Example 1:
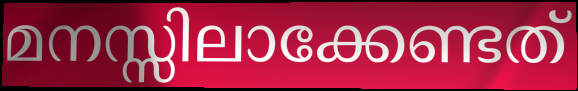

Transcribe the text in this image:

മനസ്സിലാക്കേണ്ടത്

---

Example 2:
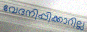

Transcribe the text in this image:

വേദനിപ്പിക്കാറില്ല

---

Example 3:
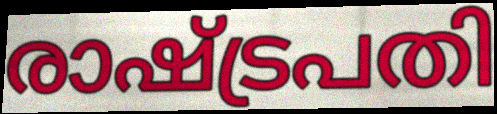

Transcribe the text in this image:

രാഷ്ട്രപതി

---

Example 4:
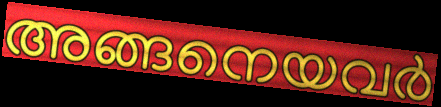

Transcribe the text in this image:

അങ്ങനെയവർ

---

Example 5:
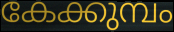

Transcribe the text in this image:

കേക്കുമ്പം